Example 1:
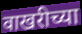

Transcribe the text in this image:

वाखरीच्या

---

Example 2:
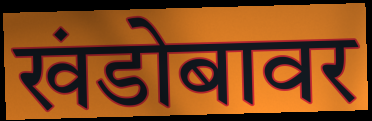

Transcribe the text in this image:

खंडोबावर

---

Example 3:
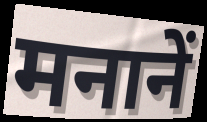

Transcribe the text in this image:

मनानें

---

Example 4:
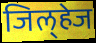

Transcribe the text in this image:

जिल्हेज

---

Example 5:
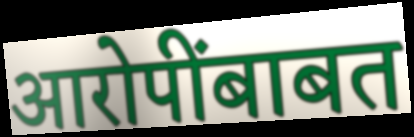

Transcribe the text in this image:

आरोपींबाबत